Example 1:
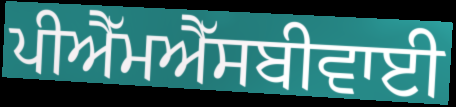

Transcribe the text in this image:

ਪੀਐੱਮਐੱਸਬੀਵਾਈ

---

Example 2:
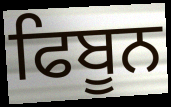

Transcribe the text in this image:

ਫਿਬੂਨ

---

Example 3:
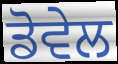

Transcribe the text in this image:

ਡੋਵੇਲ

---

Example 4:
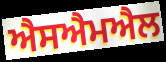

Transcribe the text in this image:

ਐਸਐਮਐਲ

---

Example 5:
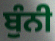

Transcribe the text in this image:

ਬੁੰਨੀ